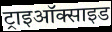
ट्राइऑक्साइड